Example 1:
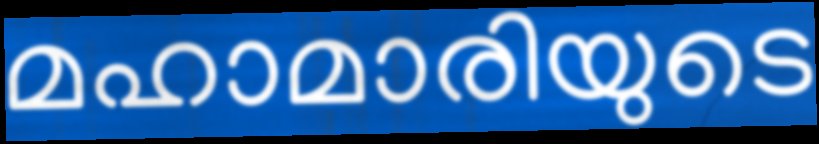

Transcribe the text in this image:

മഹാമാരിയുടെ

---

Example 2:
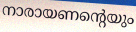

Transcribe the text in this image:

നാരായണന്റെയും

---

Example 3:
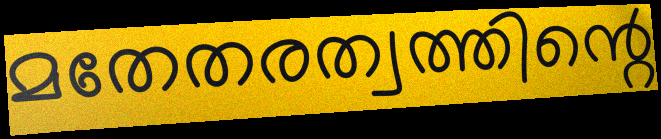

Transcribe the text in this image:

മതേതരത്വത്തിന്റെ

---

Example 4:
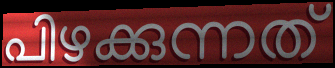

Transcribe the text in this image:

പിഴക്കുന്നത്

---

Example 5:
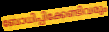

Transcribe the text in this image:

ബോധിപ്പിക്കേണ്ടിവരും